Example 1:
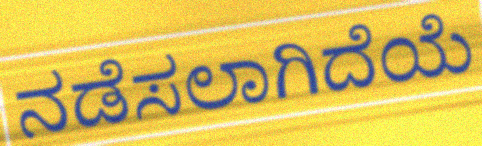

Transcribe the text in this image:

ನಡೆಸಲಾಗಿದೆಯೆ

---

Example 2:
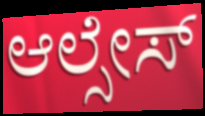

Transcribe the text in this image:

ಆಲ್ಸೇಸ್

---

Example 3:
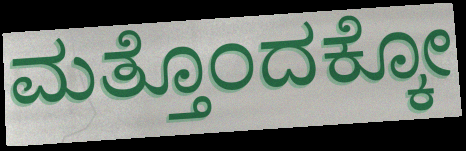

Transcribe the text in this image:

ಮತ್ತೊಂದಕ್ಕೋ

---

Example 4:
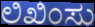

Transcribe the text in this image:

ಲಿಖಿಂಸು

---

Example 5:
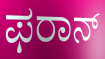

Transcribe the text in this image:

ಫರಾನ್